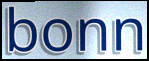
bonn